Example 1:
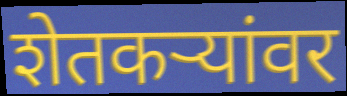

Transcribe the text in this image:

शेतकऱ्यांवर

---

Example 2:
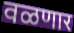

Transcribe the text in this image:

वळणार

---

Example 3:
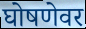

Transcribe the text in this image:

घोषणेवर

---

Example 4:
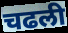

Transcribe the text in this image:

चढली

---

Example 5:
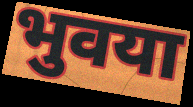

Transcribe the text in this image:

भुवया